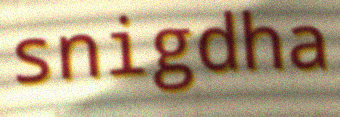
snigdha